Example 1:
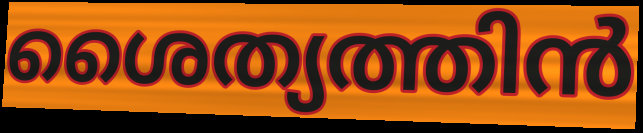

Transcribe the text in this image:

ശൈത്യത്തിൻ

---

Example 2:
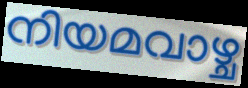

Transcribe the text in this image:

നിയമവാഴ്ച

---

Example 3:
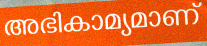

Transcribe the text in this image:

അഭികാമ്യമാണ്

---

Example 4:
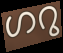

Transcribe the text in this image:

ഗറു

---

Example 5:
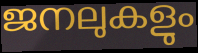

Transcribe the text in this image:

ജനലുകളും